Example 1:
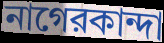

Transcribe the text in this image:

নাগেরকান্দা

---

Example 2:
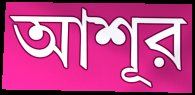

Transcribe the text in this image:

আশূর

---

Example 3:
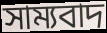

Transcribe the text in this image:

সাম্যবাদ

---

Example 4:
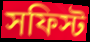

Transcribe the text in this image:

সফিস্ট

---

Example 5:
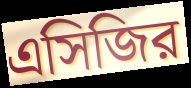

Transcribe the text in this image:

এসিজির